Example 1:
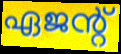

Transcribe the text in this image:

ഏജന്റ്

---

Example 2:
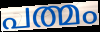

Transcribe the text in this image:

പത്മം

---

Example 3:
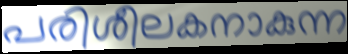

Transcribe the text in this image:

പരിശീലകനാകുന്ന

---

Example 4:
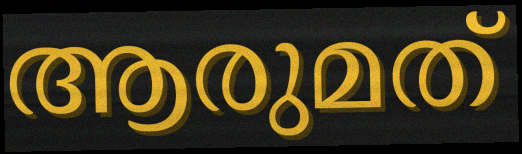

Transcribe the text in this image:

ആരുമത്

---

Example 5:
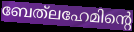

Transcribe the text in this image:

ബേത്‌ലഹേമിന്റെ